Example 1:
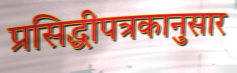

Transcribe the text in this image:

प्रसिद्धीपत्रकानुसार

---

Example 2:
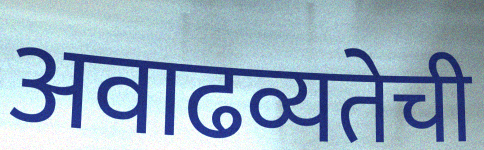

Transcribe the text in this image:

अवाढव्यतेची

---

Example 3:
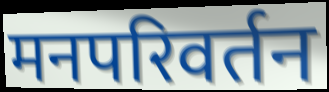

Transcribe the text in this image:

मनपरिवर्तन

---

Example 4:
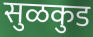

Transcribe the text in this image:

सुळकुड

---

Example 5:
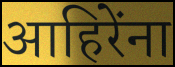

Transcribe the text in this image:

आहिरेंना